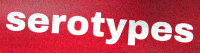
serotypes